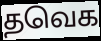
தவெக